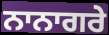
ਨਾਨਾਗਰੇ